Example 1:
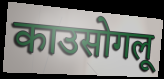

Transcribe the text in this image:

काउसोगलू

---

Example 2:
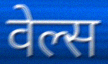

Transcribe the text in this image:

वेल्स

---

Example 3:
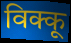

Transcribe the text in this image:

विक्कू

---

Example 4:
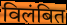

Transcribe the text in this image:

विलंबित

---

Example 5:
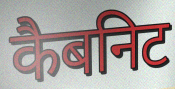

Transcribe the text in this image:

कैबनिट